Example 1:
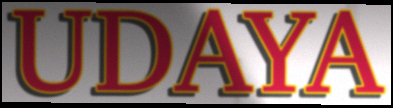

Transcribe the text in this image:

UDAYA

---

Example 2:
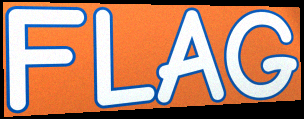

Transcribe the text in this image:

FLAG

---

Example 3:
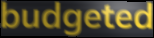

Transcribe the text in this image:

budgeted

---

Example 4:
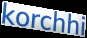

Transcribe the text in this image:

korchhi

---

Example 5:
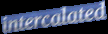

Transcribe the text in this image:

intercalated